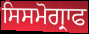
ਸਿਸਮੋਗ੍ਰਾਫ